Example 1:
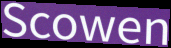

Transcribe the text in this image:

Scowen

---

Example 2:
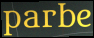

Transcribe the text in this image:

parbe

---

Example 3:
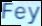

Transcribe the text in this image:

Fey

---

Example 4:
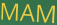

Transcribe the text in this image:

MAM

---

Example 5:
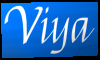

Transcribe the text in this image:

Viya